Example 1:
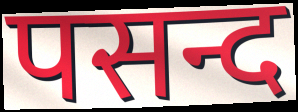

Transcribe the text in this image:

पसन्द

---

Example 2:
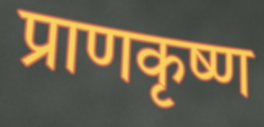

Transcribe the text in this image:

प्राणकृष्ण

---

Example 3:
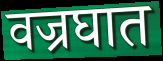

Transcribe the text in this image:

वज्रघात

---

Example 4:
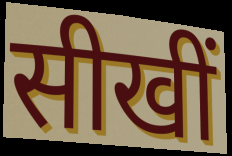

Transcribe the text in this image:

सीखीं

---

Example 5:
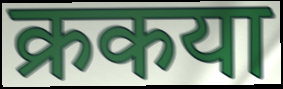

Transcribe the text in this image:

क्रकया